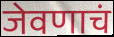
जेवणाचं